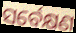
ସର୍ବେକ୍ଷଣ